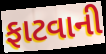
ફાટવાની